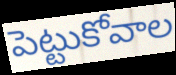
పెట్టుకోవాల